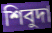
শিবুদা